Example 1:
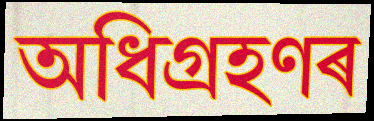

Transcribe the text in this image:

অধিগ্ৰহণৰ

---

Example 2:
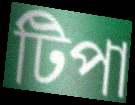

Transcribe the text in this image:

টিপা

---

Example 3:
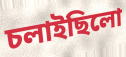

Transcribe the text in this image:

চলাইছিলো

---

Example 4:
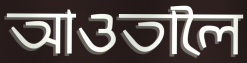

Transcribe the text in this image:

আওতালৈ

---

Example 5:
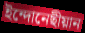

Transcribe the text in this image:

ইন্দোনেছীয়ান